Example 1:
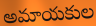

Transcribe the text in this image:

అమాయకుల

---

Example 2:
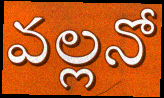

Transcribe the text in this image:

వల్లనో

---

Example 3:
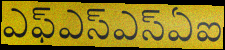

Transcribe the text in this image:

ఎఫ్ఎస్ఎస్ఏఐ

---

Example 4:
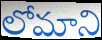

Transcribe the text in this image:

లోమాని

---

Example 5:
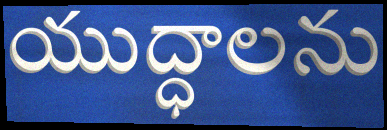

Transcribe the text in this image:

యుద్ధాలను